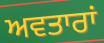
ਅਵਤਾਰਾਂ